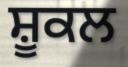
ਸ਼ੂਕਲ